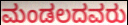
ಮಂಡಲದವರು